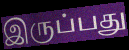
இருப்பது